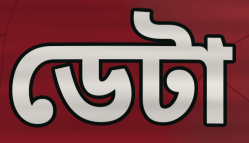
ডেটা